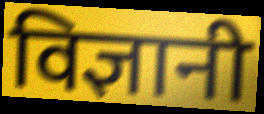
विज्ञानी